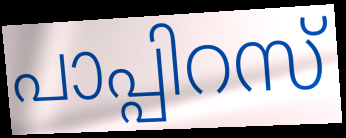
പാപ്പിറസ്